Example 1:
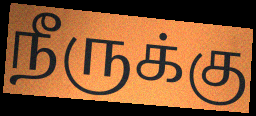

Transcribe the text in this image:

நீருக்கு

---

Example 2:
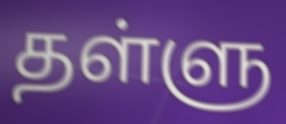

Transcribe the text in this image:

தள்ளு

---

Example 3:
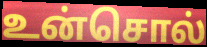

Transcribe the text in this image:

உன்சொல்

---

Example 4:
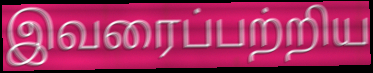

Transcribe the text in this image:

இவரைப்பற்றிய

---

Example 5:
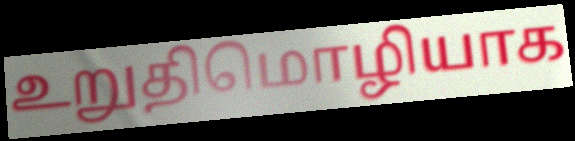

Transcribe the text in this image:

உறுதிமொழியாக